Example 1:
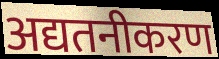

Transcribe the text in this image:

अद्यतनीकरण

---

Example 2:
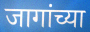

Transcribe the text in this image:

जागांच्या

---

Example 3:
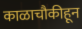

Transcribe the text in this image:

काळाचौकीहून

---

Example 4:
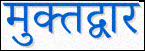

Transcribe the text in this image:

मुक्तद्वार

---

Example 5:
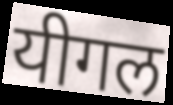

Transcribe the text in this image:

यीगल